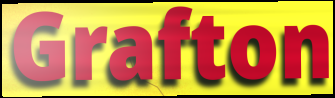
Grafton